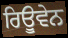
ਰਿਊਵੇਨ